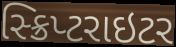
સ્ક્રિપ્ટરાઇટર